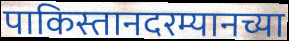
पाकिस्तानदरम्यानच्या